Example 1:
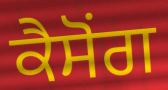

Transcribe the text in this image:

ਕੈਸੋਂਗ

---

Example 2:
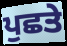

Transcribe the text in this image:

ਪੁਛਤੇ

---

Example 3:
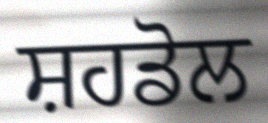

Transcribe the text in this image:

ਸ਼ਹਡੋਲ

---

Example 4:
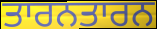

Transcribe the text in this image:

ਤਾਰਨਤਾਰਨ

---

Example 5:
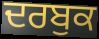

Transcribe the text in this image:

ਦਰਬੁਕ